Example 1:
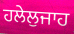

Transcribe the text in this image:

ਹਲੇਲੁਜਾਹ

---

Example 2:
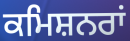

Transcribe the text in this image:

ਕਮਿਸ਼ਨਰਾਂ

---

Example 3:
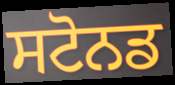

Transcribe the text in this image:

ਸਟੋਨਡ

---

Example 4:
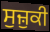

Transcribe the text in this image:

ਸੁਜ਼ੁਕੀ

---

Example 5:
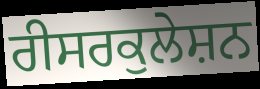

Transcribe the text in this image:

ਰੀਸਰਕੁਲੇਸ਼ਨ